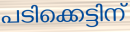
പടിക്കെട്ടിന്